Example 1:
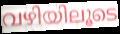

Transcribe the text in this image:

വഴിയിലൂടെ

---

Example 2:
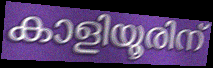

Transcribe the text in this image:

കാളിയൂരിന്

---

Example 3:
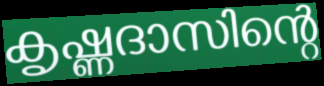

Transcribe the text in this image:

കൃഷ്ണദാസിന്റെ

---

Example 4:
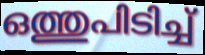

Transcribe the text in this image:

ഒത്തുപിടിച്ച്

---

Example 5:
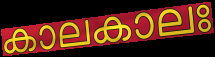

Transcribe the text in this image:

കാലകാലഃ